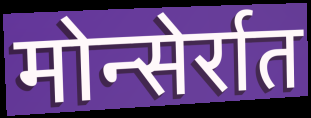
मोन्सेर्रात